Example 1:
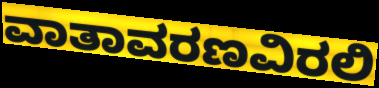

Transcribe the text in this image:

ವಾತಾವರಣವಿರಲಿ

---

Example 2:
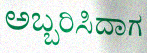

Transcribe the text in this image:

ಅಬ್ಬರಿಸಿದಾಗ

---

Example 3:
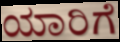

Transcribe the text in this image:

ಯಾರಿಗೆ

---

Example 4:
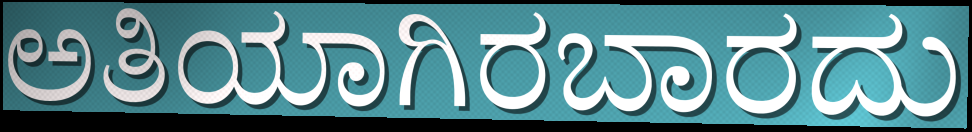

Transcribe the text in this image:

ಅತಿಯಾಗಿರಬಾರದು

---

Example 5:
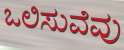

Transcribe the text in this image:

ಒಲಿಸುವೆವು